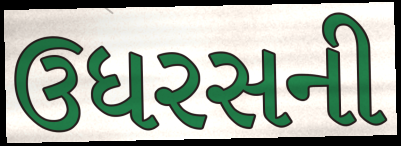
ઉધરસની